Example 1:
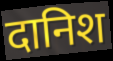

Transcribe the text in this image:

दानिश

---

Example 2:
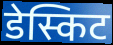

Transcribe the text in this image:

डेस्किट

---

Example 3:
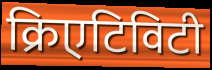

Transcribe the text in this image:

क्रिएटिविटी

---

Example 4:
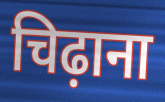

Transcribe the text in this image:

चिढ़ाना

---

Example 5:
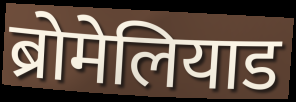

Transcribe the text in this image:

ब्रोमेलियाड